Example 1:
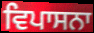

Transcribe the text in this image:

ਵਿਪਾਸਨਾ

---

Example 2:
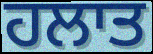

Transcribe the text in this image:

ਹਲਾਤ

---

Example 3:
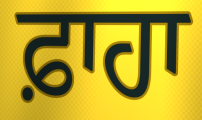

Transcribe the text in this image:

ਫ਼ਾਹਾ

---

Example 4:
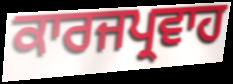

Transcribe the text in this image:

ਕਾਰਜਪ੍ਰਵਾਹ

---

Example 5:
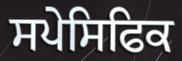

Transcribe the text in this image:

ਸਪੇਸਿਫਿਕ